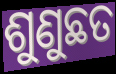
ଶୁଣୁଛତ